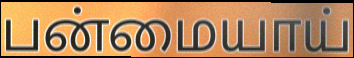
பன்மையாய்